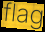
flag